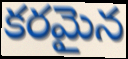
కరమైన